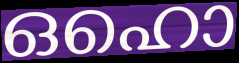
ഒഹൊ